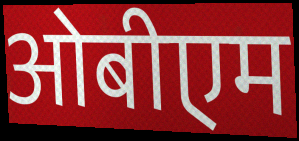
ओबीएम